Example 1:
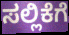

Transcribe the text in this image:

ಸಲ್ಲಿಕೆಗೆ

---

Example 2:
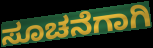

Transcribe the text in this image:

ಸೂಚನೆಗಾಗಿ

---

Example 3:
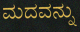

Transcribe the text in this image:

ಮದವನ್ನು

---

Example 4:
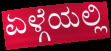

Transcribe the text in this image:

ಏಳ್ಗೆಯಲ್ಲಿ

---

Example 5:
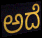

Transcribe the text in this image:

ಅದೆ